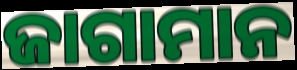
ଜାଗାମାନ